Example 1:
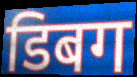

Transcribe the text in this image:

डिबग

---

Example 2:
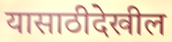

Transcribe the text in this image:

यासाठीदेखील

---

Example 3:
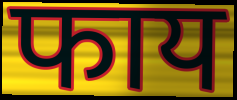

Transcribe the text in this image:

फाय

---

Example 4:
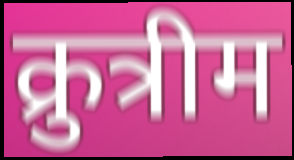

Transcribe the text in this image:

क्रुत्रीम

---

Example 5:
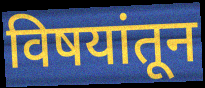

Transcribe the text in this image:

विषयांतून